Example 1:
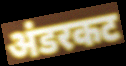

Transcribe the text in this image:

अंडरकट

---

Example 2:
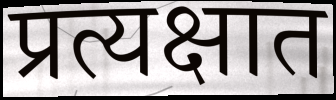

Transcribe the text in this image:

प्रत्यक्षात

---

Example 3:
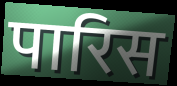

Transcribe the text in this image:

पारिस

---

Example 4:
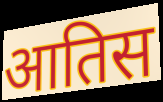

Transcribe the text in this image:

आतिस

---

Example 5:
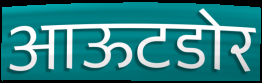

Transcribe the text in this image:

आऊटडोर